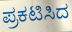
ಪ್ರಕಟಿಸಿದ